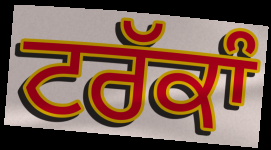
ਟਰੱਕਾੰ